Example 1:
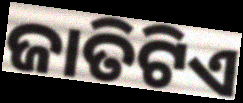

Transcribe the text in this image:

ଜାତିଟିଏ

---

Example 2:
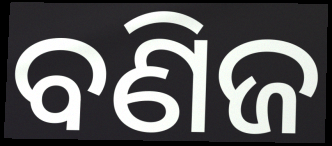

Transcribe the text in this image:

ବଣିଜ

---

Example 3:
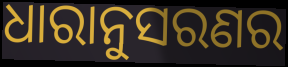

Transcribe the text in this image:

ଧାରାନୁସରଣର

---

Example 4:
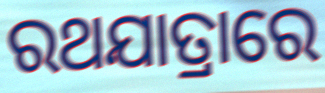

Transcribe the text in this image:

ରଥଯାତ୍ରାରେ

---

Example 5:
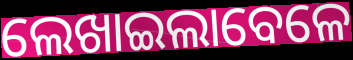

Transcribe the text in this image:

ଲେଖାଇଲାବେଳେ